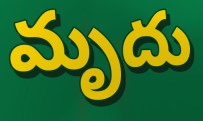
మృదు